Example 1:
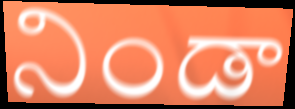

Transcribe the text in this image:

నిండా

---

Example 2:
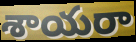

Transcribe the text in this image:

శాయరా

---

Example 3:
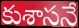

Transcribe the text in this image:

కుశాసనే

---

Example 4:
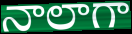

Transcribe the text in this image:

నాలాగా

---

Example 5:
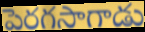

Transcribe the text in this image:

పెరగసాగాడు